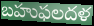
బహుఫలదళ